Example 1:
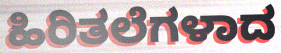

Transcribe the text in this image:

ಹಿರಿತಲೆಗಳಾದ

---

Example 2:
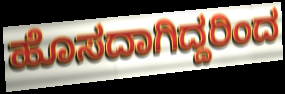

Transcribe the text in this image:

ಹೊಸದಾಗಿದ್ದರಿಂದ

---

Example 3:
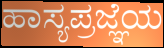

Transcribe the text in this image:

ಹಾಸ್ಯಪ್ರಜ್ಞೆಯ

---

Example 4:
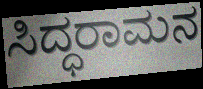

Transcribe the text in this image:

ಸಿದ್ಧರಾಮನ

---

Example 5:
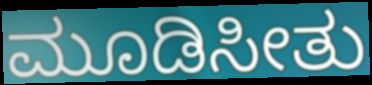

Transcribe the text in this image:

ಮೂಡಿಸೀತು